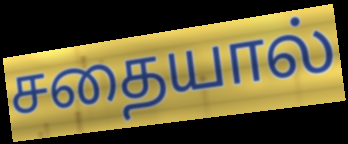
சதையால்